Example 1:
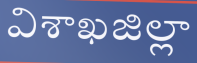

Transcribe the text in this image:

విశాఖజిల్లా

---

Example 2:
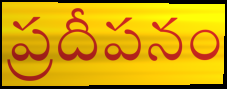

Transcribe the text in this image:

ప్రదీపనం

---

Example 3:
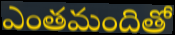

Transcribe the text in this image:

ఎంతమందితో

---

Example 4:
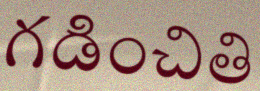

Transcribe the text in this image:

గడించితి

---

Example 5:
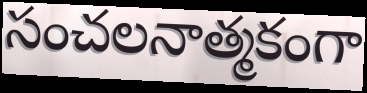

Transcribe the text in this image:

సంచలనాత్మకంగా